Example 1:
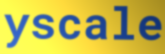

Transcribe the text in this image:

yscale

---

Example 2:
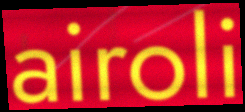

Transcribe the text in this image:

airoli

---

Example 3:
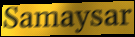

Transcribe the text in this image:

Samaysar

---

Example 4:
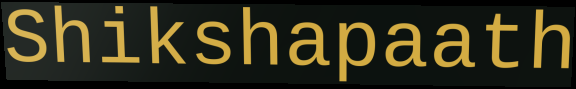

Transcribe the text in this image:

Shikshapaath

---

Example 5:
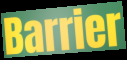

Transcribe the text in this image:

Barrier